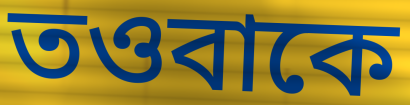
তওবাকে